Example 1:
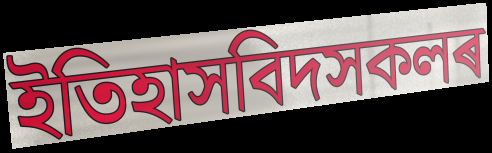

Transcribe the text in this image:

ইতিহাসবিদসকলৰ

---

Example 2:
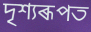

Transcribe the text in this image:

দৃশ্যৰূপত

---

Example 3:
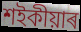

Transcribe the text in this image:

শইকীয়াৰ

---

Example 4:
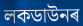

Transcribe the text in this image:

লকডাউনৰ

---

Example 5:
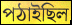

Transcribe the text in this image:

পঠাইছিল